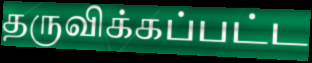
தருவிக்கப்பட்ட